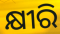
କ୍ଷୀରି